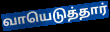
வாயெடுத்தார்